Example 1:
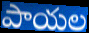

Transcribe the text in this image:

పాయల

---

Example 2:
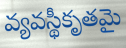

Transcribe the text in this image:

వ్యవస్థీకృతమై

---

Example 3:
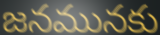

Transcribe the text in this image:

జనమునకు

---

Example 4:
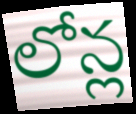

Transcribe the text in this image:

లోన్ల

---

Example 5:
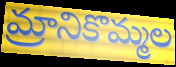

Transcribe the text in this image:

మ్రానికొమ్మల